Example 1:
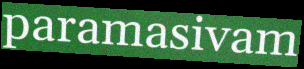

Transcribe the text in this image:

paramasivam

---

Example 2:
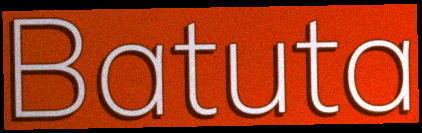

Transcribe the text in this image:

Batuta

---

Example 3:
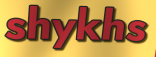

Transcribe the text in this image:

shykhs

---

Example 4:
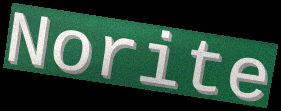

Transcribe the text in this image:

Norite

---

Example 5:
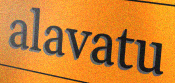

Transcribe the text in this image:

alavatu